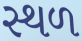
સ્થળ